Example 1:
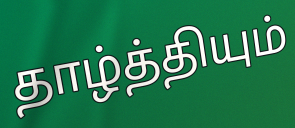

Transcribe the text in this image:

தாழ்த்தியும்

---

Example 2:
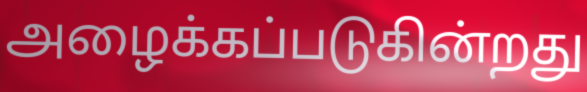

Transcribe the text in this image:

அழைக்கப்படுகின்றது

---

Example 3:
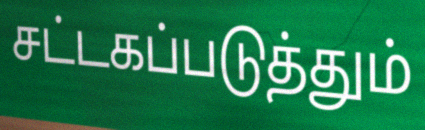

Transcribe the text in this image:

சட்டகப்படுத்தும்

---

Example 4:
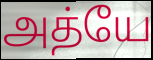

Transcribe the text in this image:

அத்யே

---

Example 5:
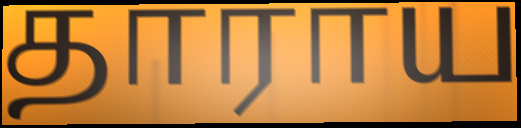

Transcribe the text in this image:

தாராய